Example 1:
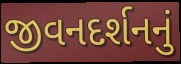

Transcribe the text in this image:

જીવનદર્શનનું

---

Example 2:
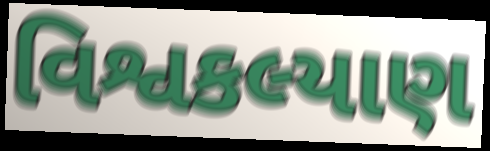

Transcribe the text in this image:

વિશ્વકલ્યાણ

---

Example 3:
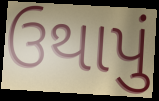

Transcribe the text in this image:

ઉથાપું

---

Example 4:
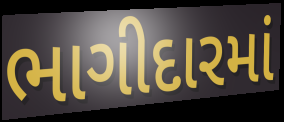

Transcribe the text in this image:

ભાગીદારમાં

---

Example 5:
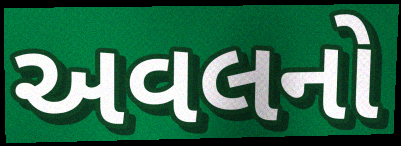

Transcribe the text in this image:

અવલનો